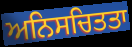
ਅਨਿਸਚਿਤਤਾ